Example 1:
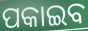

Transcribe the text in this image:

ପକାଇବ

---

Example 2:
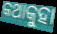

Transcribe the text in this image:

କଥାକୁହା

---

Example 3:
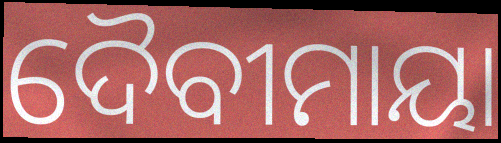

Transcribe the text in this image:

ଦୈବୀମାୟା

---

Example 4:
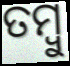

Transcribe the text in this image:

ତମ୍ବୁ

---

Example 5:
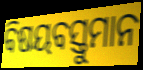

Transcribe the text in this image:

ବିଷୟବସ୍ତୁମାନ